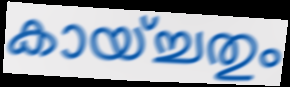
കായ്ച്ചതും